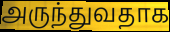
அருந்துவதாக